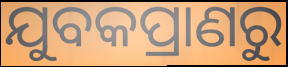
ଯୁବକପ୍ରାଣରୁ